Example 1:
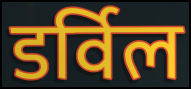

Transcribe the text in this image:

डर्विल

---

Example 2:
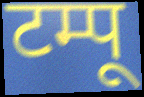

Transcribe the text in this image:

टम्पू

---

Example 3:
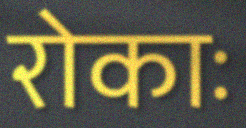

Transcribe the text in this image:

रोकाः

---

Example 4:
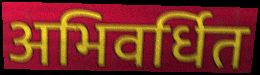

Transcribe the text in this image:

अभिवर्धित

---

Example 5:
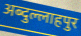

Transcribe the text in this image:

अब्दुल्लाहपुर